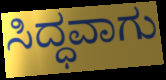
ಸಿದ್ಧವಾಗು